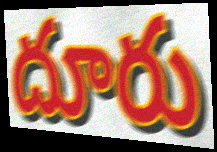
దూరు